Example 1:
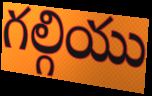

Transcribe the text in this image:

గల్గియు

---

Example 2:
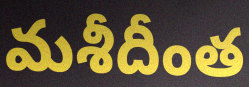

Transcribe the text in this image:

మశీదీంత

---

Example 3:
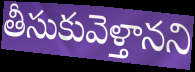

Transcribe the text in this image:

తీసుకువెళ్తానని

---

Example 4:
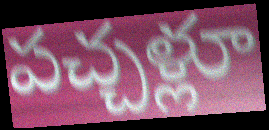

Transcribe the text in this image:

పచ్చళ్లూ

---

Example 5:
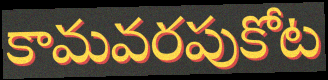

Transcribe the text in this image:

కామవరపుకోట